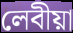
লেবীয়া